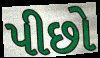
પીછો